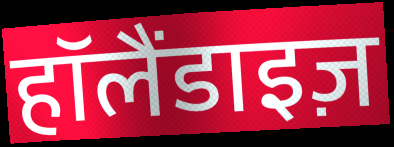
हॉलैंडाइज़